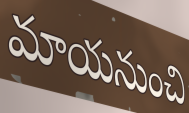
మాయనుంచి